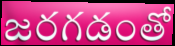
జరగడంతో